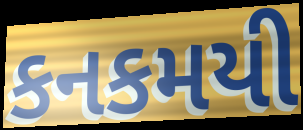
કનકમયી